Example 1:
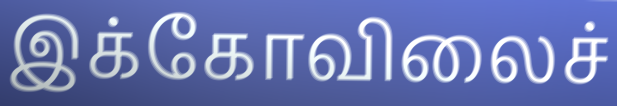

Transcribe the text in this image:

இக்கோவிலைச்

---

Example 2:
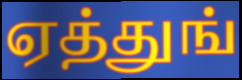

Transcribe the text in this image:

ஏத்துங்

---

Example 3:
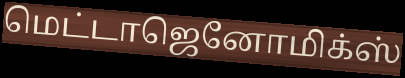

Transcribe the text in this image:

மெட்டாஜெனோமிக்ஸ்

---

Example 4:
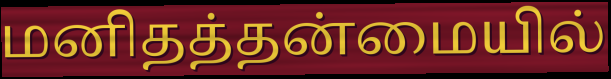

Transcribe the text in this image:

மனிதத்தன்மையில்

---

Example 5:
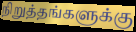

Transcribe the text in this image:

நிறுத்தங்களுக்கு